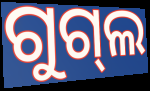
ଗୁଗ୍‌ଲ